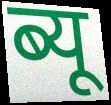
ब्यू